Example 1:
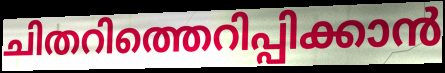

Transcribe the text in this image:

ചിതറിത്തെറിപ്പിക്കാൻ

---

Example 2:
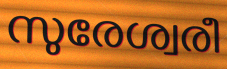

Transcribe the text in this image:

സുരേശ്വരീ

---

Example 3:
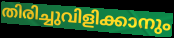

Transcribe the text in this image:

തിരിച്ചുവിളിക്കാനും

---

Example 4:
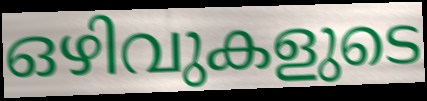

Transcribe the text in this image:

ഒഴിവുകളുടെ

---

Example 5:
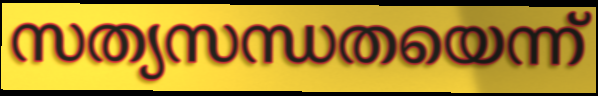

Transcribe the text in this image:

സത്യസന്ധതയെന്ന്